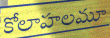
కోలాహలమూ